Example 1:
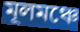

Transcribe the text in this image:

মূলমঞ্চে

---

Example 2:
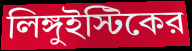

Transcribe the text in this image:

লিঙ্গুইস্টিকের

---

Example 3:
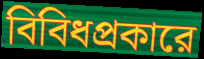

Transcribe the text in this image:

বিবিধপ্রকারে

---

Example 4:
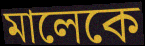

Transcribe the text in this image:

মালেকে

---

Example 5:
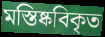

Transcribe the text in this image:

মস্তিষ্কবিকৃত